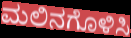
ಮಲಿನಗೊಳಿಸಿ